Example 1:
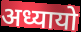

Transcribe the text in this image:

अध्यायो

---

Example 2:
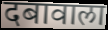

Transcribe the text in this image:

दबावाला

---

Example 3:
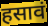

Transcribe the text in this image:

हसावं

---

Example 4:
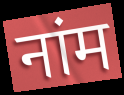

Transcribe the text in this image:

नांम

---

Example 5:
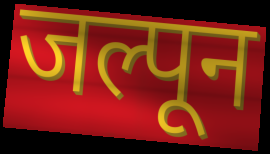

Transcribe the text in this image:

जल्पून